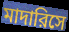
মাদারিসে